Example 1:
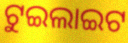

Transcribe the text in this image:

ଟୁଇଲାଇଟ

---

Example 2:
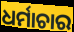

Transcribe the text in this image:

ଧର୍ମାଚାର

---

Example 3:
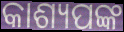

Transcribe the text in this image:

କାଶ୍ୟପଙ୍କ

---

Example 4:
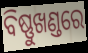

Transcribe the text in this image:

ବିଷ୍ଣୁଖଣ୍ଡରେ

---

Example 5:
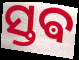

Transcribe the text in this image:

ସ୍ତଵ